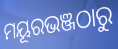
ମୟୂରଭଞ୍ଜଠାରୁ